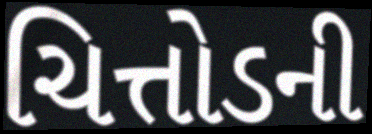
ચિત્તોડની